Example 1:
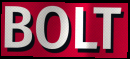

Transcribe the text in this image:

BOLT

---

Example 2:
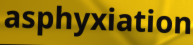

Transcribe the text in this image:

asphyxiation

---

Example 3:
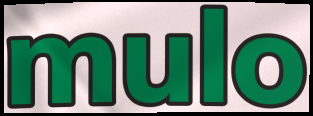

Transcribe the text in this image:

mulo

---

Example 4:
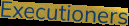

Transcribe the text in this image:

Executioners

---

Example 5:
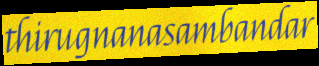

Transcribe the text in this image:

thirugnanasambandar